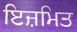
ਇਜ਼ਮਿਤ